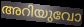
അറിയുവോ